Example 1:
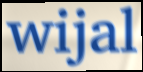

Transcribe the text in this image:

wijal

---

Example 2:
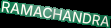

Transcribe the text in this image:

RAMACHANDRA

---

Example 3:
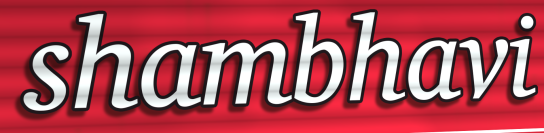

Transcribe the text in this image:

shambhavi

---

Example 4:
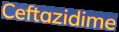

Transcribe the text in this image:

Ceftazidime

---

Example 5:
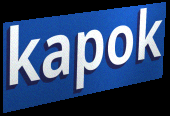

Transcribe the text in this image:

kapok